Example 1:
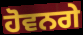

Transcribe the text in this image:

ਹੋਵਨਗੇ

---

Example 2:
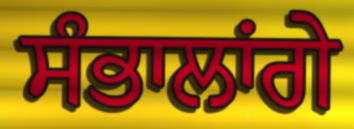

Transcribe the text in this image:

ਸੰਭਾਲਾਂਗੇ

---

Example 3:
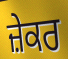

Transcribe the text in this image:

ਜ਼ੇਕਰ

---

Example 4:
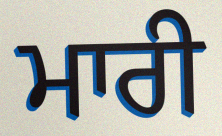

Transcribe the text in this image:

ਮਾਰੀ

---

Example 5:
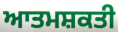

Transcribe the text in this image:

ਆਤਮਸ਼ਕਤੀ